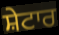
ਸ਼ੇਟਾਰ